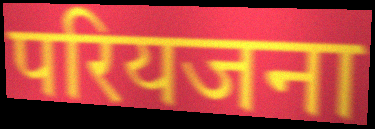
परियजना